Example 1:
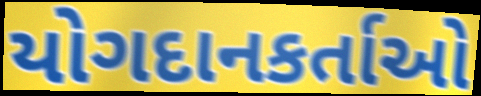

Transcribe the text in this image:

યોગદાનકર્તાઓ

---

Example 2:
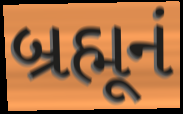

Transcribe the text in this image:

બ્રહ્મૂનં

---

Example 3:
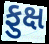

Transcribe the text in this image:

ફુક્ષ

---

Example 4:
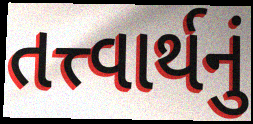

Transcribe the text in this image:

તત્ત્વાર્થનું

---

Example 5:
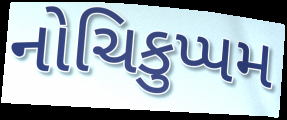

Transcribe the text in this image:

નોચિકુપ્પમ